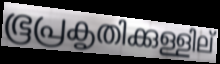
ഭൂപ്രകൃതിക്കുള്ളില്